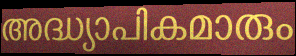
അദ്ധ്യാപികമാരും